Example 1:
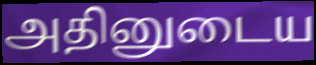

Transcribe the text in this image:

அதினுடைய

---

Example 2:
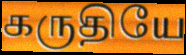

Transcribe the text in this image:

கருதியே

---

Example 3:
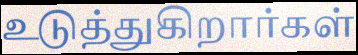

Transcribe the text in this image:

உடுத்துகிறார்கள்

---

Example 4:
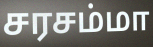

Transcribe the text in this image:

சரசம்மா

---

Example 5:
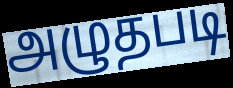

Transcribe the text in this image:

அழுதபடி